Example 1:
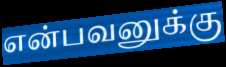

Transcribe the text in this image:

என்பவனுக்கு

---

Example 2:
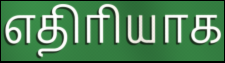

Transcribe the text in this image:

எதிரியாக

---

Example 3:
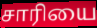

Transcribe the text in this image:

சாரியை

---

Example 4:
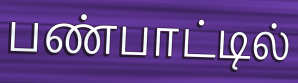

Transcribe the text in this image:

பண்பாட்டில்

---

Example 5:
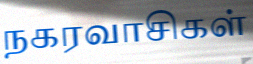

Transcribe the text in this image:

நகரவாசிகள்